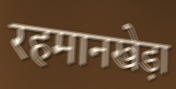
रहमानखेड़ा